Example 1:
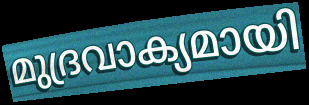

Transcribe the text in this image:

മുദ്രവാക്യമായി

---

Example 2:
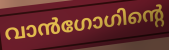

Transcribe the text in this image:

വാൻഗോഗിന്റെ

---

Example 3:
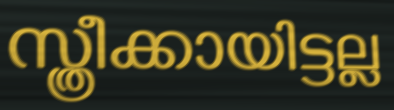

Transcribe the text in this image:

സ്ത്രീക്കായിട്ടല്ല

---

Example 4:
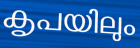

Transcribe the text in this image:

കൃപയിലും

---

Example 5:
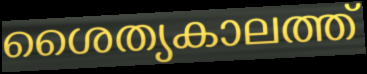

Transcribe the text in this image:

ശൈത്യകാലത്ത്